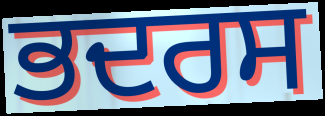
ਭਦਰਸ